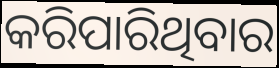
କରିପାରିଥିବାର